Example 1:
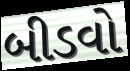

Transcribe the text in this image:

બીડવો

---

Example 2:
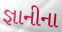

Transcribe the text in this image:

જ્ઞાનીના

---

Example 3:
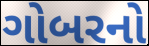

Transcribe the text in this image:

ગોબરનો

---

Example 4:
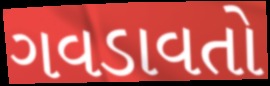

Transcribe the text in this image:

ગવડાવતો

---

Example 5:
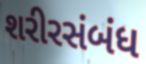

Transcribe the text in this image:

શરીરસંબંધ